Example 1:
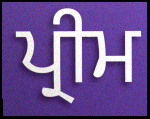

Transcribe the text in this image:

ਪ੍ਰੀਮ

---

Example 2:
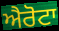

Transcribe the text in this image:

ਐਰੋਟਾ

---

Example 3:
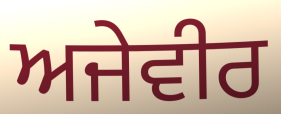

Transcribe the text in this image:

ਅਜੇਵੀਰ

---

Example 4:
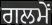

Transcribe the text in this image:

ਗਲਮੇਂ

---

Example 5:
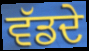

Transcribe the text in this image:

ਵੱਡਦੇ